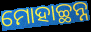
ମୋହାଚ୍ଛନ୍ନ